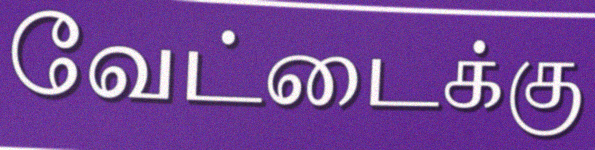
வேட்டைக்கு